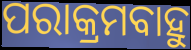
ପରାକ୍ରମବାହୁ